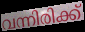
വന്നിരിക്ക്